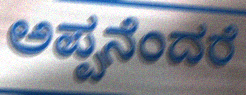
ಅಪ್ಪನೆಂದರೆ